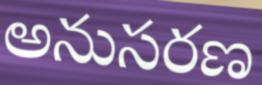
అనుసరణ